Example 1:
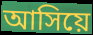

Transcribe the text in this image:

আসিয়ে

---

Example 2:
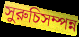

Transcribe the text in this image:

সুরুচিসম্পন্ন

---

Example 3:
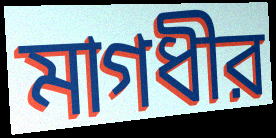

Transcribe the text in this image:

মাগধীর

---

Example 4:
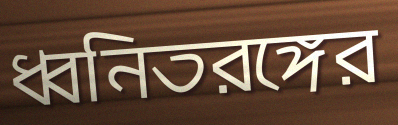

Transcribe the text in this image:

ধ্বনিতরঙ্গের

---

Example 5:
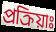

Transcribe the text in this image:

প্রক্রিয়াঃ